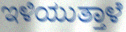
ಇಳಿಯುತ್ತಾಳೆ